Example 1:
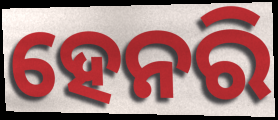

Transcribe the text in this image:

ହେନରି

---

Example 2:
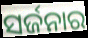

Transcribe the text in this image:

ସର୍ଜନାର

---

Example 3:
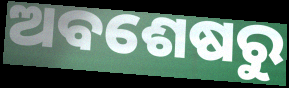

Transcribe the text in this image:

ଅବଶେଷରୁ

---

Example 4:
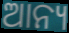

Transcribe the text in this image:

ଆନ୍ୟ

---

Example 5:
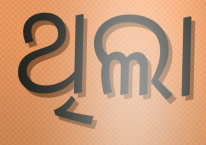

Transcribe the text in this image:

ଥିଲା